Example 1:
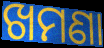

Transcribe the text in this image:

ଖମଣା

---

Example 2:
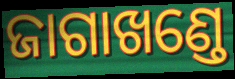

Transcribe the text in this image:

ଜାଗାଖଣ୍ଡେ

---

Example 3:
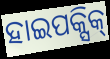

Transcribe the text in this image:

ହାଇପକ୍ସିକ୍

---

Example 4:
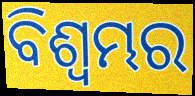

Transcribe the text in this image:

ବିଶ୍ବମ୍ଭର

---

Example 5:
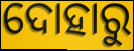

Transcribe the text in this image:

ଦୋହାରୁ